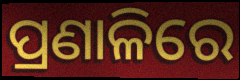
ପ୍ରଣାଳିରେ